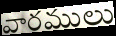
వారములు